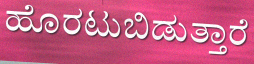
ಹೊರಟುಬಿಡುತ್ತಾರೆ